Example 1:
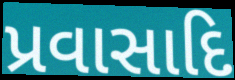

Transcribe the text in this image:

પ્રવાસાદિ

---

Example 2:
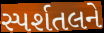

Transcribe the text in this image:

સ્પર્શતલને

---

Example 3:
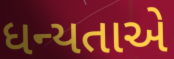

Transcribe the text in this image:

ધન્યતાએ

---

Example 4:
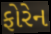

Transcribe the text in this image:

ફોરેન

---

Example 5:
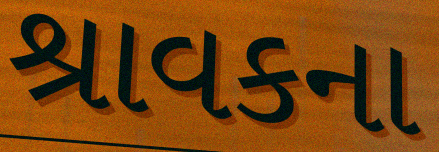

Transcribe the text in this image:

શ્રાવકના